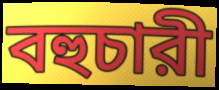
বহুচারী